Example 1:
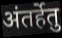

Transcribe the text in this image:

अंतर्हेतु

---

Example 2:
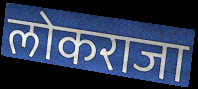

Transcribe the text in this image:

लोकराजा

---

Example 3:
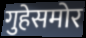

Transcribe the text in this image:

गुहेसमोर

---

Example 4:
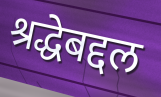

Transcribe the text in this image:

श्रद्धेबद्दल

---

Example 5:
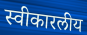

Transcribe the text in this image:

स्वीकारलीय